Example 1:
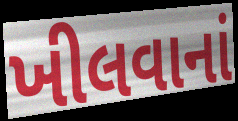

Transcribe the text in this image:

ખીલવાનાં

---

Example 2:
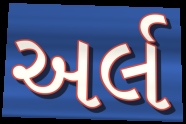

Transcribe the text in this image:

અર્લ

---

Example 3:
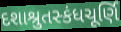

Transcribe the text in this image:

દશાશ્રુતસ્કંધચૂર્ણિ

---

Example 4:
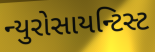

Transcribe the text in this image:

ન્યુરોસાયન્ટિસ્ટ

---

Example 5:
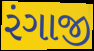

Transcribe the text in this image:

રંગાજી